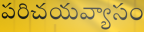
పరిచయవ్యాసం